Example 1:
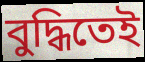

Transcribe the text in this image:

বুদ্ধিতেই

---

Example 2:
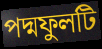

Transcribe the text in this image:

পদ্মফুলটি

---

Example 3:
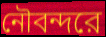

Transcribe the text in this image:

নৌবন্দরে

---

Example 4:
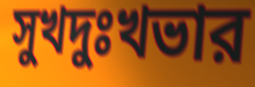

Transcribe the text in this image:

সুখদুঃখভার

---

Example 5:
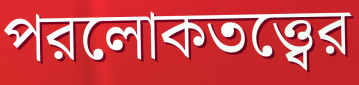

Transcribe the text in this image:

পরলোকতত্ত্বের